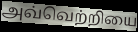
அவ்வெற்றியை